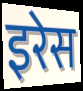
इरेस